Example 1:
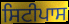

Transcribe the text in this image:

ਸਿਟੀਪਾਸ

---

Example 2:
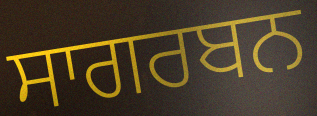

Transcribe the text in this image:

ਸਾਗਰਬਨ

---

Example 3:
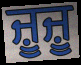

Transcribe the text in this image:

ਜ਼ੂਜ਼ੂ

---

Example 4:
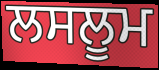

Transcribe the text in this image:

ਲਸਲੂਮ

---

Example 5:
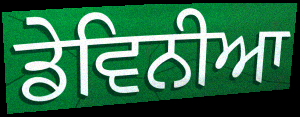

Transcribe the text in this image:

ਡੇਵਿਨੀਆ